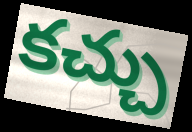
కచ్చు